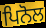
ਪਿਨੋਲ